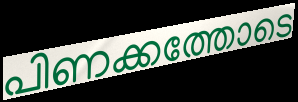
പിണക്കത്തോടെ